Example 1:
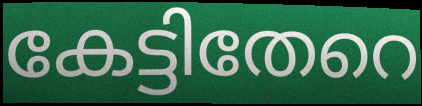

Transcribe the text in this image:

കേട്ടിതേറെ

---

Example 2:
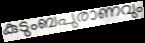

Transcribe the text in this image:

കുടുംബപുരാണവും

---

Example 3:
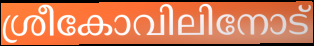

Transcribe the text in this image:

ശ്രീകോവിലിനോട്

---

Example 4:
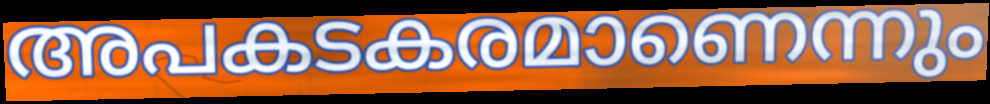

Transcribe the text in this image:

അപകടകരമാണെന്നും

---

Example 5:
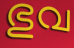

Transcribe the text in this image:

ഭുവ